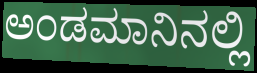
ಅಂಡಮಾನಿನಲ್ಲಿ